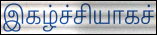
இகழ்ச்சியாகச்